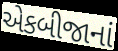
એકબીજાનાં